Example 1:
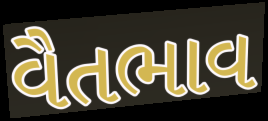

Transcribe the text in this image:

વૈતભાવ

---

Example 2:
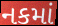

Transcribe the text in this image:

નકમાં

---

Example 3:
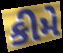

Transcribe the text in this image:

કીમે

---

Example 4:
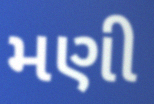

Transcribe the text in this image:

મણી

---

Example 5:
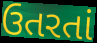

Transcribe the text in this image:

ઉતરતાં